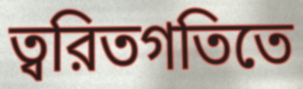
ত্বরিতগতিতে